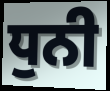
ਧੁਨੀ